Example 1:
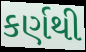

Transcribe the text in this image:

કર્ણથી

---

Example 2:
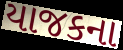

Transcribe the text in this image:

યાજકના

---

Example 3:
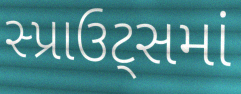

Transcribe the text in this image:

સ્પ્રાઉટ્સમાં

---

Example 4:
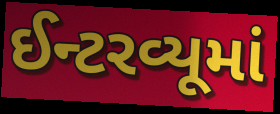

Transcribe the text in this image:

ઈન્ટરવ્યૂમાં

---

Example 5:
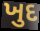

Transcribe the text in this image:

ખુદ